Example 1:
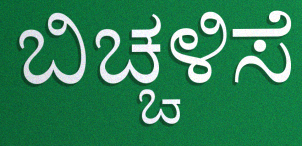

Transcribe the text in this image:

ಬಿಚ್ಚಳಿಸೆ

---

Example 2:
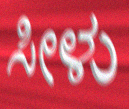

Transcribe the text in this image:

ಸೀಳು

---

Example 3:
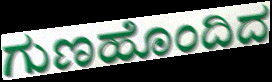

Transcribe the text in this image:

ಗುಣಹೊಂದಿದ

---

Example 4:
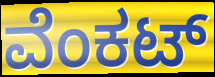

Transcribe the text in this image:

ವೆಂಕಟ್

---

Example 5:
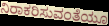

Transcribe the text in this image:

ನಿರಾಕರಿಸುವಂತೆಯೂ